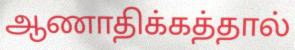
ஆணாதிக்கத்தால்